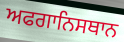
ਅਫਗਾਨਿਸਥਾਨ